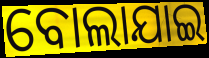
ବୋଲାଯାଇ